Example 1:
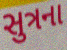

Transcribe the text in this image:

સુત્રના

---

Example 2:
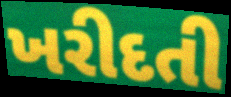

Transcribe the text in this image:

ખરીદતી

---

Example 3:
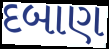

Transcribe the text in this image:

દબાણ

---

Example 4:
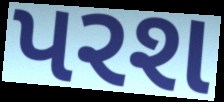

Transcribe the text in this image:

પરશ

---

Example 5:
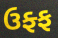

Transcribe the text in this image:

ઉફ્ફ